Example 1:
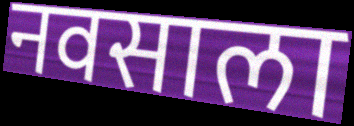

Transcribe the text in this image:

नवसाला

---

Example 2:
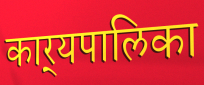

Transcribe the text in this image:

कार्यपालिका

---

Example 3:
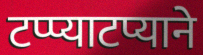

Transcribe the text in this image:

टप्प्याटप्याने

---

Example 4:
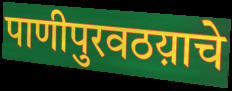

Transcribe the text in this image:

पाणीपुरवठय़ाचे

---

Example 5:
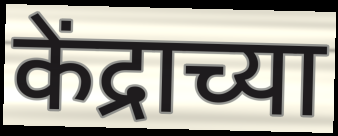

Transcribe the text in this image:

केंद्राच्या